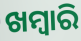
ଖମ୍ୱାରି